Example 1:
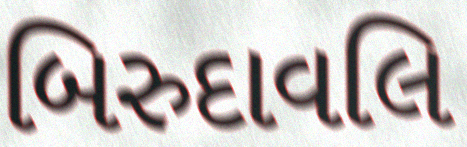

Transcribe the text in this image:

બિરુદાવલિ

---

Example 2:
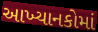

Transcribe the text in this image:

આખ્યાનકોમાં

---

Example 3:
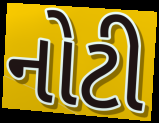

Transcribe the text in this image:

નોટી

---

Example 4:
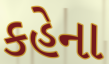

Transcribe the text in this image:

કહેના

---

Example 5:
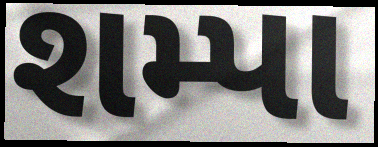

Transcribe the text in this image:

શમ્પા